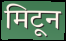
मिटून